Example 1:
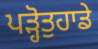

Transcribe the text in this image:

ਪੜ੍ਹੋਤੁਹਾਡੇ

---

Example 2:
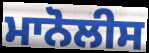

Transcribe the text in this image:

ਮਾਨੋਲੀਸ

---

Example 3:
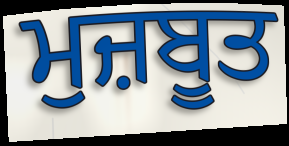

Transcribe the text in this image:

ਮੁਜ਼ਬੂਤ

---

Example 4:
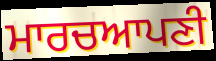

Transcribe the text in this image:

ਮਾਰਚਆਪਣੀ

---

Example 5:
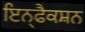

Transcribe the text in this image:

ਇਨ੍ਫੈਕਸ਼ਨ